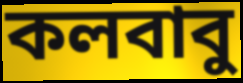
কলবাবু